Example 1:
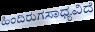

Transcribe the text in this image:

ಹಿಂದಿರುಗಸಾಧ್ಯವಿದೆ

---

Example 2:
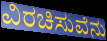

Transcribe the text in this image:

ವಿರಚಿಸುವೆನು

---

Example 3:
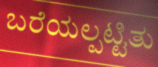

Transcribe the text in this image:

ಬರೆಯಲ್ಪಟ್ಟಿತು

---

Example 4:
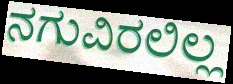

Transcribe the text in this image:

ನಗುವಿರಲಿಲ್ಲ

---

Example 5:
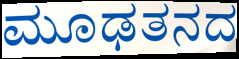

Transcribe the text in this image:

ಮೂಢತನದ